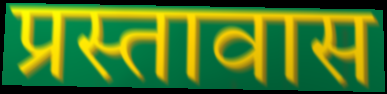
प्रस्तावास